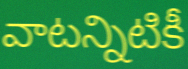
వాటన్నిటికీ